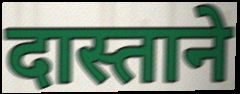
दास्ताने